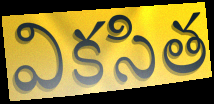
వికసిత